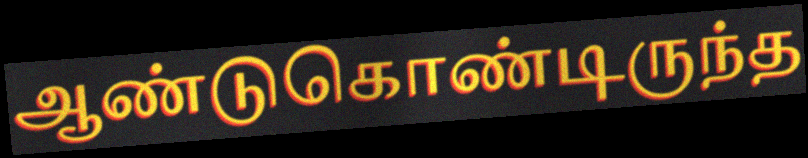
ஆண்டுகொண்டிருந்த